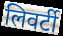
लिवर्टी